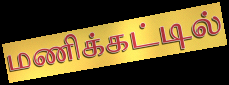
மணிக்கட்டில்